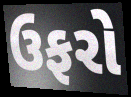
ઉફરો